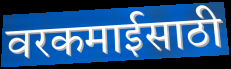
वरकमाईसाठी